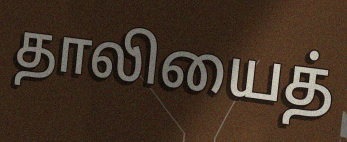
தாலியைத்